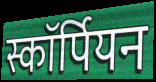
स्कॉर्पियन